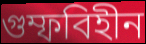
গুম্ফবিহীন